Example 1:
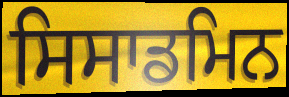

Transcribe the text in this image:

ਸਿਸਾਡਮਿਨ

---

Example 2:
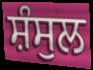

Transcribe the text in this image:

ਸ਼ੰਸੁਲ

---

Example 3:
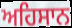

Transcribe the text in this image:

ਅਹਿਸਾਨ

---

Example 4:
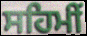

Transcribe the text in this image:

ਸਹਿਮੀਂ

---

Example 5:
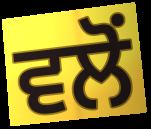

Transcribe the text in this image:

ਵਲੋੰ